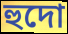
হুদো